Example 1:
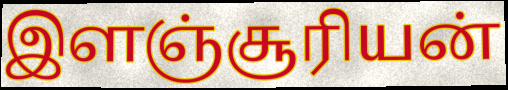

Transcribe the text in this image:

இளஞ்சூரியன்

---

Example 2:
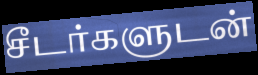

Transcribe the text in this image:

சீடர்களுடன்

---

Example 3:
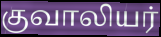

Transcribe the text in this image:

குவாலியர்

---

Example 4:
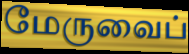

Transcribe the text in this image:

மேருவைப்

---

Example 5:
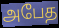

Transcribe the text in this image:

அபேத